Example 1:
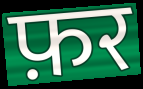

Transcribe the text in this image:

फ़र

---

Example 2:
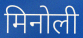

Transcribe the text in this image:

मिनोली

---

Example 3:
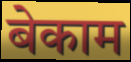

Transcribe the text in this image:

बेकाम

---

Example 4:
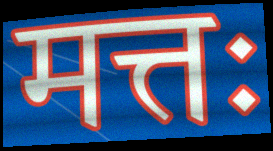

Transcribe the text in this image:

मत्तः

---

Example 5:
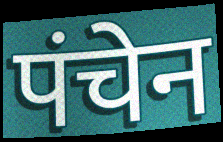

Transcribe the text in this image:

पंचेन